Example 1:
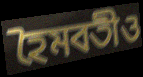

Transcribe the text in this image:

হৈমবতীও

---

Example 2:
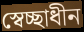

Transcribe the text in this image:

স্বেচ্ছাধীন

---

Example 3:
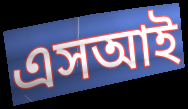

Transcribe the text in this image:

এসআই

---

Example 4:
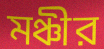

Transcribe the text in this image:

মঞ্চীর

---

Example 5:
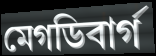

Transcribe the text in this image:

মেগডিবার্গ